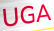
UGA